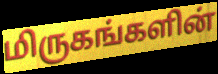
மிருகங்களின்